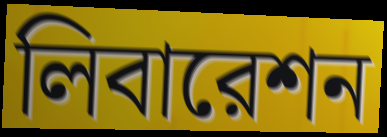
লিবারেশন